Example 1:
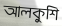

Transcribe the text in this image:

আলকুশি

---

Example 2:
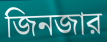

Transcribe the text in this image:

জিনজার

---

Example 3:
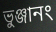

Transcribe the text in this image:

ভুঞ্জানং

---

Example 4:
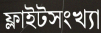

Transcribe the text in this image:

ফ্লাইটসংখ্যা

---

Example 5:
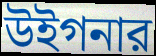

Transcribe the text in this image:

উইগনার